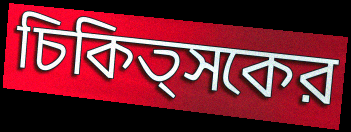
চিকিত্সকের